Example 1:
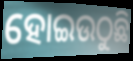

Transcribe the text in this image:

ହୋଇଉଠୁଛି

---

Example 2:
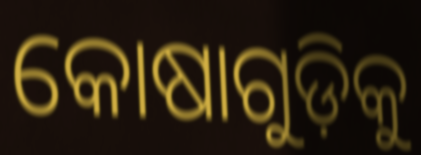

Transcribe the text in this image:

କୋଷାଗୁଡ଼ିକୁ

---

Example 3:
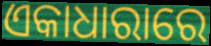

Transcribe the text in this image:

ଏକାଧାରାରେ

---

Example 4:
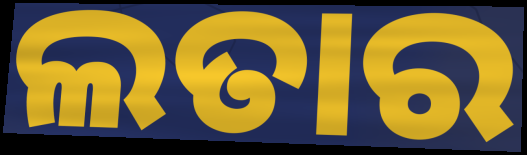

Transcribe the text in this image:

ଲତାର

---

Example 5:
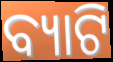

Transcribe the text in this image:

ବ୍ୟାଟି